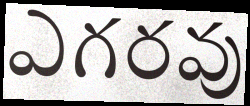
ఎగరవు